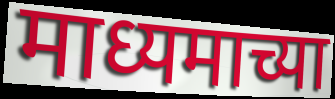
माध्यमाच्या